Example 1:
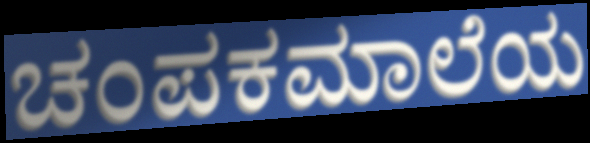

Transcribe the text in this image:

ಚಂಪಕಮಾಲೆಯ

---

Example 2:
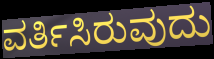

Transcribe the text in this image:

ವರ್ತಿಸಿರುವುದು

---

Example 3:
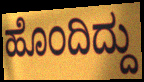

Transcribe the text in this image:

ಹೊಂದಿದ್ದು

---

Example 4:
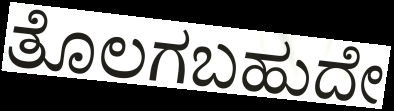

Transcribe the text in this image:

ತೊಲಗಬಹುದೇ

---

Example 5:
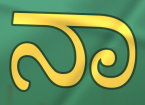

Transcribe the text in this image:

ನಾ